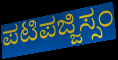
ಪಟಿಪಜ್ಜಿಸ್ಸಂ